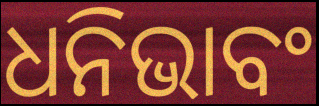
ଧନିଭାବଂ